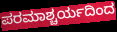
ಪರಮಾಶ್ಚರ್ಯದಿಂದ